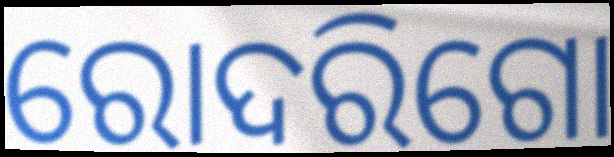
ରୋଦରିଗୋ